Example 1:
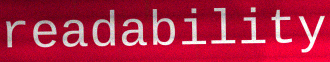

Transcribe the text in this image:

readability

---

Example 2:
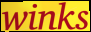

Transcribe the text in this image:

winks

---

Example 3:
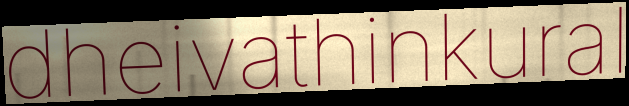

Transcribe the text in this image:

dheivathinkural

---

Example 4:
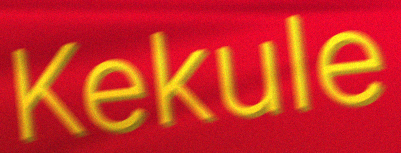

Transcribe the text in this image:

Kekule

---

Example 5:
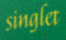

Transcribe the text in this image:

singlet